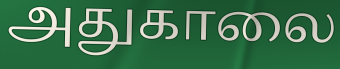
அதுகாலை